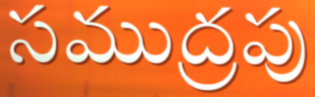
సముద్రపు